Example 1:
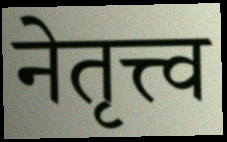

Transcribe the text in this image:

नेतृत्त्व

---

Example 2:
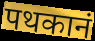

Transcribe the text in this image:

पथकानं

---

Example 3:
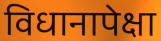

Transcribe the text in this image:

विधानापेक्षा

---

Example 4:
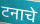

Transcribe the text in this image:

टनाचे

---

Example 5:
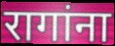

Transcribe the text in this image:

रागांना